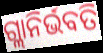
ଗ୍ଲାନିର୍ଭବତି